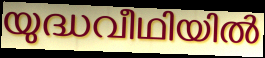
യുദ്ധവീഥിയിൽ